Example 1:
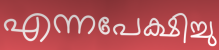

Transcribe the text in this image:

എന്നപേക്ഷിച്ചു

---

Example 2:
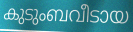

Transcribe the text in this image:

കുടുംബവീടായ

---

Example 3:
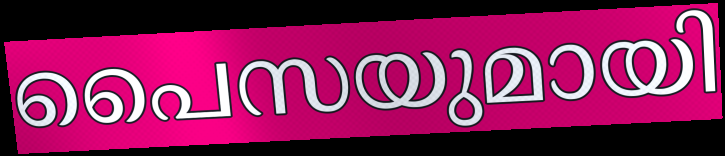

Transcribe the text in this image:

പൈസയുമായി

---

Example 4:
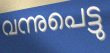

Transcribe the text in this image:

വന്നുപെട്ടു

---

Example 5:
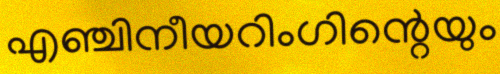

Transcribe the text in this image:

എഞ്ചിനീയറിംഗിന്റെയും